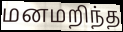
மனமறிந்த